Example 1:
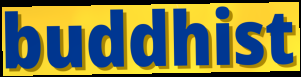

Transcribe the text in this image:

buddhist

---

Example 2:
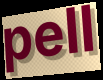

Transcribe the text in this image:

pell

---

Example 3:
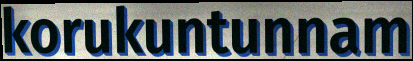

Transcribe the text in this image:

korukuntunnam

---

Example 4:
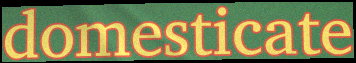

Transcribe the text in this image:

domesticate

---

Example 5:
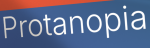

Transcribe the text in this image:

Protanopia